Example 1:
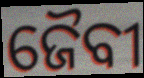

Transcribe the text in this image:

ଜୈବୀ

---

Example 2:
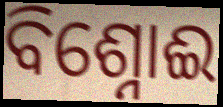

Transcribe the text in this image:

ବିଶ୍ନୋଈ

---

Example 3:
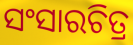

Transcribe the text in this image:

ସଂସାରଚିତ୍ର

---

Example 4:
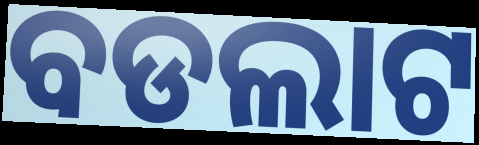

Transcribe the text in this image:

ବଡଲାଟ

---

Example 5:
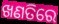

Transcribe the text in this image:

ଖଣତିରେ